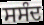
ਸਸੰਦ